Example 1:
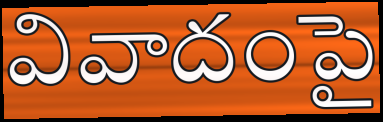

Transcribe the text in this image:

వివాదంపై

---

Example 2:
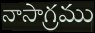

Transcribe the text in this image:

నాసాగ్రము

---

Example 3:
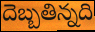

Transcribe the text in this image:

దెబ్బతిన్నది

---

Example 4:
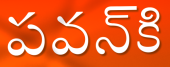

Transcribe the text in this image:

పవన్‌కి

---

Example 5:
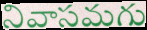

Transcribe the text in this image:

నివాసమగు